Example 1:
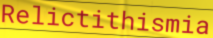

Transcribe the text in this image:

Relictithismia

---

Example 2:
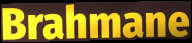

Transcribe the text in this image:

Brahmane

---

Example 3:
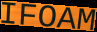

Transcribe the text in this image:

IFOAM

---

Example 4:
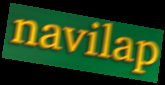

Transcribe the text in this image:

navilap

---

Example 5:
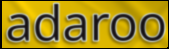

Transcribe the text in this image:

adaroo